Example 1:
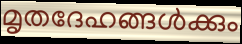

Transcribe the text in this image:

മൃതദേഹങ്ങൾക്കും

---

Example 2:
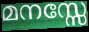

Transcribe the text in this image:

മനസ്സേ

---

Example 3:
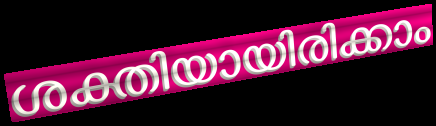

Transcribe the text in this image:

ശക്തിയായിരിക്കാം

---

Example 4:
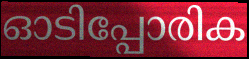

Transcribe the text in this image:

ഓടിപ്പോരിക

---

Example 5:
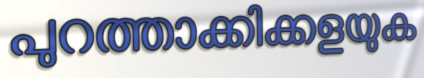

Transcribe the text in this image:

പുറത്താക്കിക്കളയുക